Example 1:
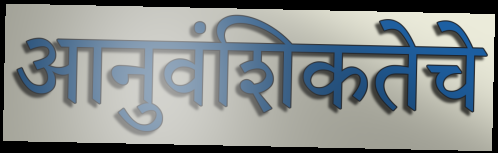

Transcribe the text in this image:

आनुवंशिकतेचे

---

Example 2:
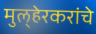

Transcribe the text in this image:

मुल्हेरकरांचे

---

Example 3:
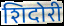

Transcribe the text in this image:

शिदोरी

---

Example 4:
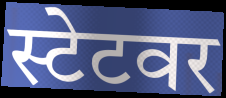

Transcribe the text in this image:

स्टेटवर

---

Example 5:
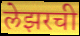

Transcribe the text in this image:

लेझरची